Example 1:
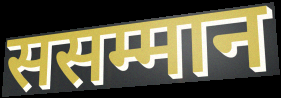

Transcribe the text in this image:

ससम्मान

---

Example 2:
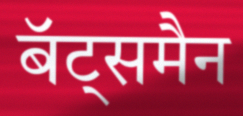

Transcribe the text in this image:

बॅट्समैन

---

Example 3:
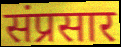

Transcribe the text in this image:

संप्रसार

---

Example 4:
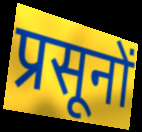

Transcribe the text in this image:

प्रसूनों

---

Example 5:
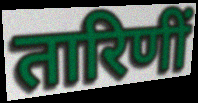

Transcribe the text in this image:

तारिणीं